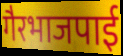
गैरभाजपाई